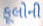
ફૂલોની